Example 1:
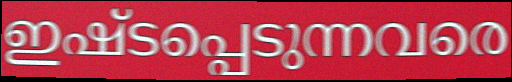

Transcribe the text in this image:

ഇഷ്ടപ്പെടുന്നവരെ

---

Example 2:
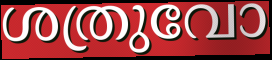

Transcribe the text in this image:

ശത്രുവോ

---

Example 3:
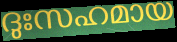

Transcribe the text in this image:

ദുഃസഹമായ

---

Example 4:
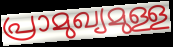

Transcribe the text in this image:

പ്രാമുഖ്യമുള്ള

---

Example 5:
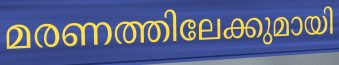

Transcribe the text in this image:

മരണത്തിലേക്കുമായി